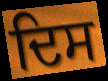
ਦਿਸ